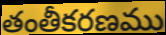
తంతీకరణము